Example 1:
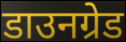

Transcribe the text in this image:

डाउनग्रेड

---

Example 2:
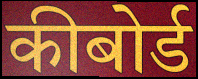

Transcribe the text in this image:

कीबोर्ड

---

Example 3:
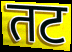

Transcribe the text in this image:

तट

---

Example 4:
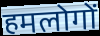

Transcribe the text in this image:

हमलोगों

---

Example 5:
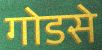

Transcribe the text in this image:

गोडसे